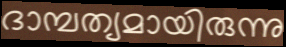
ദാമ്പത്യമായിരുന്നു